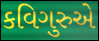
કવિગુરુએ